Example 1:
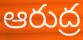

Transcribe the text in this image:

ఆరుద్ర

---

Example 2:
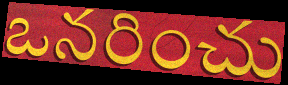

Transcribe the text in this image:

ఒనరించు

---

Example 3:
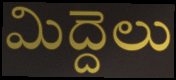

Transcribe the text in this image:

మిద్దెలు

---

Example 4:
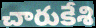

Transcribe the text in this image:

చారుకేశి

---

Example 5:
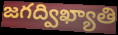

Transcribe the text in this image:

జగద్విఖ్యాతి